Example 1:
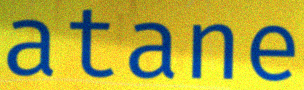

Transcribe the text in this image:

atane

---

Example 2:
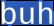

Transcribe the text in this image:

buh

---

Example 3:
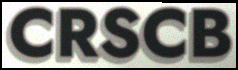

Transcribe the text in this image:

CRSCB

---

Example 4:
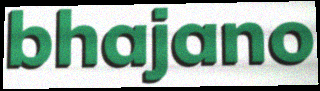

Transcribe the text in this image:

bhajano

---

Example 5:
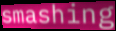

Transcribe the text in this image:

smashing